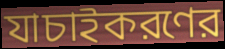
যাচাইকরণের